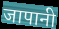
जापानी